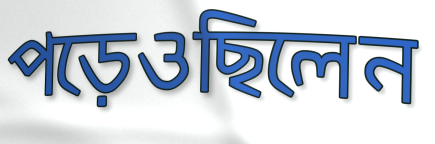
পড়েওছিলেন